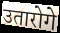
उतारोगे